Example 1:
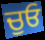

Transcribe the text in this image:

ਚੁਓ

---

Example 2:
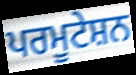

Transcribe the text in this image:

ਪਰਮੂਟੇਸ਼ਨ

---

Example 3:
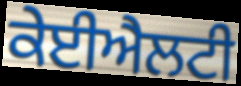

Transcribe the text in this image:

ਕੇਈਐਲਟੀ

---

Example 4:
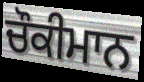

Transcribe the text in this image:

ਚੌਕੀਮਾਨ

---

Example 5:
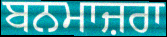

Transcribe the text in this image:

ਬਨਮਾਜ਼ਰਾ